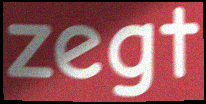
zegt